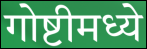
गोष्टीमध्ये